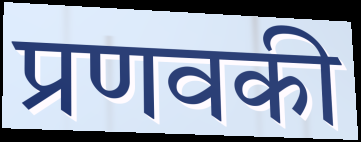
प्रणवकी